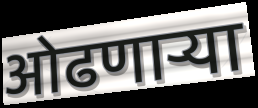
ओढणार्‍या